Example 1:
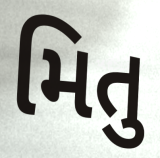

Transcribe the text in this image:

મિતુ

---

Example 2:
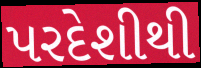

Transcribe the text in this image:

પરદેશીથી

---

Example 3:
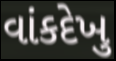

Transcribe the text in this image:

વાંકદેખુ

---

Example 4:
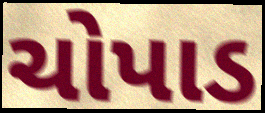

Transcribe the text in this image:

ચોપાડ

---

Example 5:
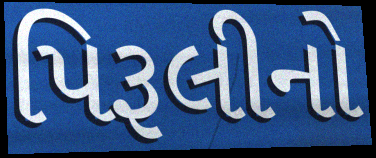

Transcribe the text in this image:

પિરૂલીનો